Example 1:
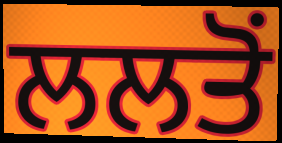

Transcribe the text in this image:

ਲਲਤੋਂ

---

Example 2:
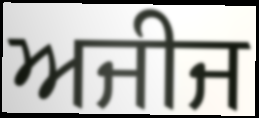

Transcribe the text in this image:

ਅਜੀਜ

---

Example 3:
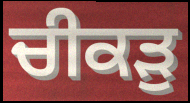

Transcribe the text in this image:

ਚੀਕੜੁ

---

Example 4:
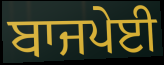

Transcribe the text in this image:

ਬਾਜਪੇਈ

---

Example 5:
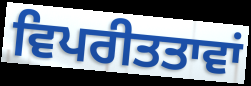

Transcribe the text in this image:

ਵਿਪਰੀਤਤਾਵਾਂ